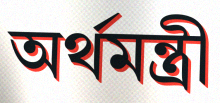
অর্থমন্ত্রী